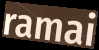
ramai